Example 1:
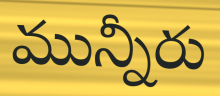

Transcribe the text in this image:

మున్నీరు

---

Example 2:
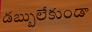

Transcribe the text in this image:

డబ్బులేకుండా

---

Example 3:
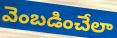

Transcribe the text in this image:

వెంబడించేలా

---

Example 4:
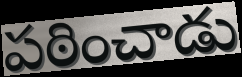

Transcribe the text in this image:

పఠించాడు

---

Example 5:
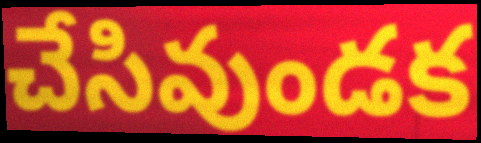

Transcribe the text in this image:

చేసివుండక